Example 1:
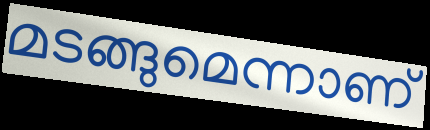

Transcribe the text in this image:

മടങ്ങുമെന്നാണ്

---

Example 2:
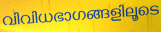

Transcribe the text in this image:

വിവിധഭാഗങ്ങളിലൂടെ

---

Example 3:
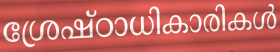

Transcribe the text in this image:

ശ്രേഷ്ഠാധികാരികൾ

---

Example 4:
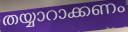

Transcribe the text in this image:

തയ്യാറാക്കണം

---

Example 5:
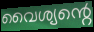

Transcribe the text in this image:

വൈശ്യന്റെ